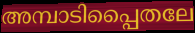
അമ്പാടിപ്പൈതലേ